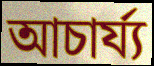
আচাৰ্য্য